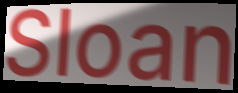
Sloan